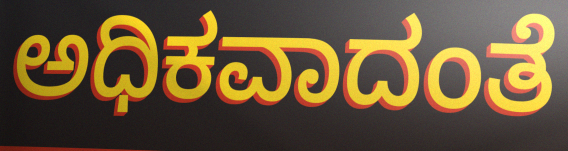
ಅಧಿಕವಾದಂತೆ